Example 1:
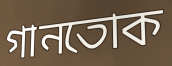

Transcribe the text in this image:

গানতোক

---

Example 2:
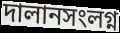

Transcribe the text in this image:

দালানসংলগ্ন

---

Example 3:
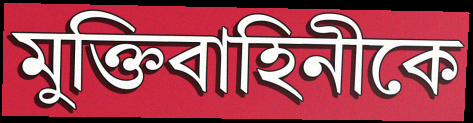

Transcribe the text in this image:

মুক্তিবাহিনীকে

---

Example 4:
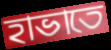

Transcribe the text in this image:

হাভাতে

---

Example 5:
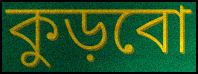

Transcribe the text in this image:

কুড়বো